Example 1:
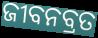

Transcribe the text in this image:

ଜୀବନବ୍ରତ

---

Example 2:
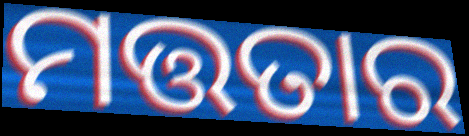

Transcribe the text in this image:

ମତ୍ତତାର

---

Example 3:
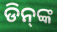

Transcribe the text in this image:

ଡିନ୍‌ଙ୍କ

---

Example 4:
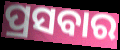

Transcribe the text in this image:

ପ୍ରସବାର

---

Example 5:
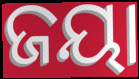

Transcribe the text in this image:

ଜୟା